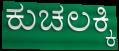
ಕುಚಲಕ್ಕಿ